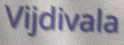
Vijdivala